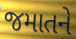
જમાતને